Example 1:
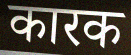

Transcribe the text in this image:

कारक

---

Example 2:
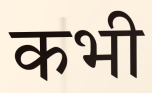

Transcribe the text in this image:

कभी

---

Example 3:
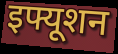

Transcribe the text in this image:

इफ्यूशन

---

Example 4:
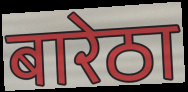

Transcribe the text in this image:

बारेठा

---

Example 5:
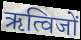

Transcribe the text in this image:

ऋत्विजों